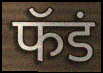
फॅडं